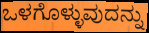
ಒಳಗೊಳ್ಳುವುದನ್ನು